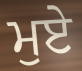
ਮੁਏ